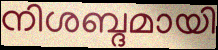
നിശബ്ദമായി